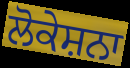
ਲੋਕੇਸ਼ਨਾ